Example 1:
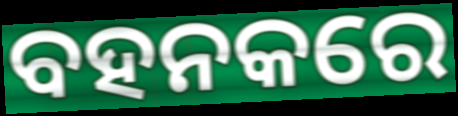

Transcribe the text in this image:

ବହନକରେ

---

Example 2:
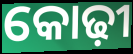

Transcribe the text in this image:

କୋଢ଼ୀ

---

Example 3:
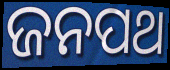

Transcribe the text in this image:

ଜନପଥ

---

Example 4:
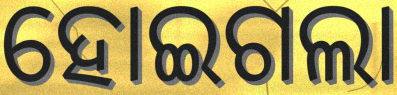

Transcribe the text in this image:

ହୋଇଗଲା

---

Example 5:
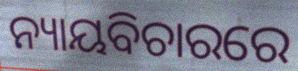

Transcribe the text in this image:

ନ୍ୟାୟବିଚାରରେ